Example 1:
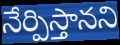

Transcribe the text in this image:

నేర్పిస్తానని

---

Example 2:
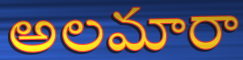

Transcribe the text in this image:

అలమారా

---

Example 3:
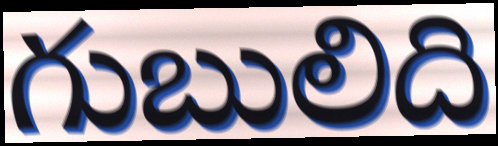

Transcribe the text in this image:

గుబులిది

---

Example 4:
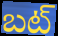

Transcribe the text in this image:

బట్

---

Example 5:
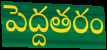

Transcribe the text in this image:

పెద్దతరం